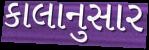
કાલાનુસાર